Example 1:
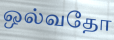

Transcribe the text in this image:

ஒல்வதோ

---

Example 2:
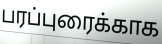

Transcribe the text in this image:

பரப்புரைக்காக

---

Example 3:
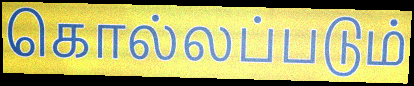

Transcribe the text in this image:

கொல்லப்படும்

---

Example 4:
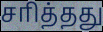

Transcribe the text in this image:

சரித்தது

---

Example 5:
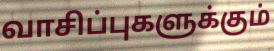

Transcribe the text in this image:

வாசிப்புகளுக்கும்